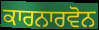
ਕਾਰਨਾਰਵੋਨ